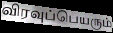
விரவுப்பெயரும்